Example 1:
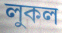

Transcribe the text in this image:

লুকল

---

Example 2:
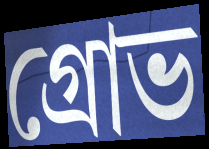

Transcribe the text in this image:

গ্রোভ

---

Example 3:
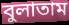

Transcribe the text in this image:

বুলাতাম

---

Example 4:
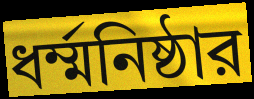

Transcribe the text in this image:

ধর্ম্মনিষ্ঠার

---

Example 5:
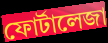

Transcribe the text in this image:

ফোর্টালেজা